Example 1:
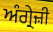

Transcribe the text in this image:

ਅੰਗ੍ਰੇਜ਼ੀ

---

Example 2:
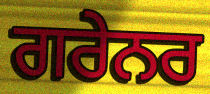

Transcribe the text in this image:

ਗਰੇਨਰ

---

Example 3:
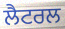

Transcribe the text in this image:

ਲੈਟਰਲ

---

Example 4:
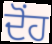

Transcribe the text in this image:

ਦੋਂਹ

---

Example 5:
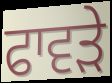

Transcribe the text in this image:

ਫਾਵੜੇ